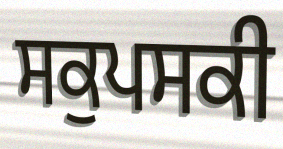
ਸਕੁਪਸਕੀ